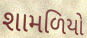
શામળિયો